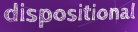
dispositional